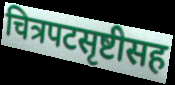
चित्रपटसृष्टीसह